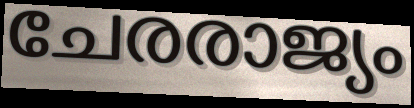
ചേരരാജ്യം